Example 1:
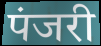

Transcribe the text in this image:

पंजरी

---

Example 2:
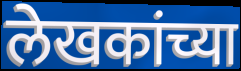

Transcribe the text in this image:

लेखकांच्या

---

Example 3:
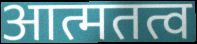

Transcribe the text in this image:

आत्मतत्व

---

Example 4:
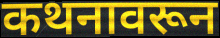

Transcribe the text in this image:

कथनावरून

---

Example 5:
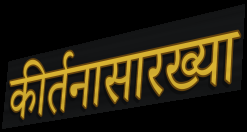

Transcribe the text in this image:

कीर्तनासारख्या